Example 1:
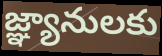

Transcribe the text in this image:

జ్ఞ్యానులకు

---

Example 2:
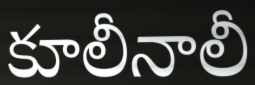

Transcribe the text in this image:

కూలీనాలీ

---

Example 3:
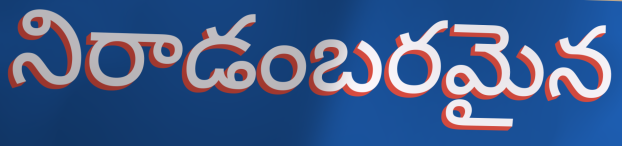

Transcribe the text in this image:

నిరాడంబరమైన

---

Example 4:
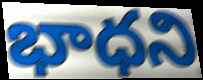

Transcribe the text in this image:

భాధని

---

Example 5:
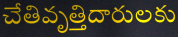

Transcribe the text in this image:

చేతివృత్తిదారులకు